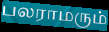
பலராமரும்